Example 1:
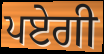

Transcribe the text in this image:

ਪਏਗੀ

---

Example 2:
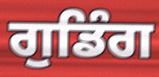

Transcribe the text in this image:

ਗੁਡਿੰਗ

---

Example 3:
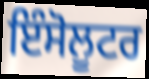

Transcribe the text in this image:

ਇੰਸੋਲੂਟਰ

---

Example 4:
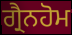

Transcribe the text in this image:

ਗ੍ਰੈਨਹੋਮ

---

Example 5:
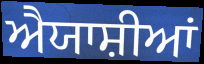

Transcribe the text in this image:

ਐਯਾਸ਼ੀਆਂ